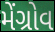
મેંગ્રોવ